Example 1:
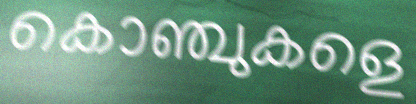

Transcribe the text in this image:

കൊഞ്ചുകളെ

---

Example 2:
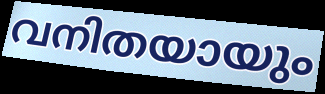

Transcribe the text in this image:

വനിതയായും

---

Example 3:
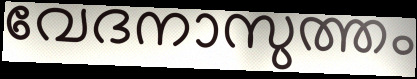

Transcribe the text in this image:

വേദനാസുത്തം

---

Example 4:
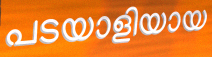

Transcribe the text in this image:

പടയാളിയായ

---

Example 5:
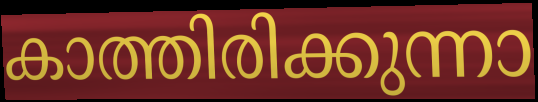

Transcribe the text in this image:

കാത്തിരിക്കുന്നാ